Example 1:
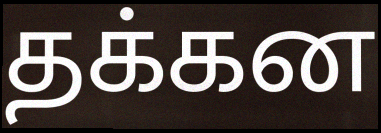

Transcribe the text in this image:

தக்கன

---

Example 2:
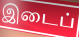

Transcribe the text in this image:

இடைப்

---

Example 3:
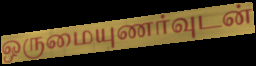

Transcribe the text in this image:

ஒருமையுணர்வுடன்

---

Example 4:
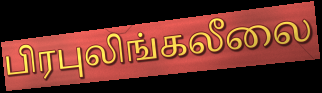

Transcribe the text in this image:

பிரபுலிங்கலீலை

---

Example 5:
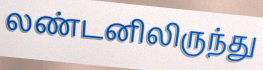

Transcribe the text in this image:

லண்டனிலிருந்து